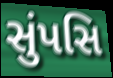
સુંપસિ